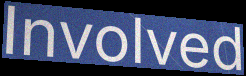
Involved